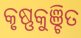
କୃଷ୍ଣକୁଞ୍ଚିତ